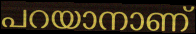
പറയാനാണ്